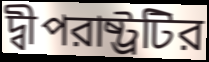
দ্বীপরাষ্ট্রটির